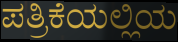
ಪತ್ರಿಕೆಯಲ್ಲಿಯ